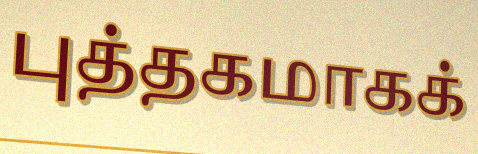
புத்தகமாகக்